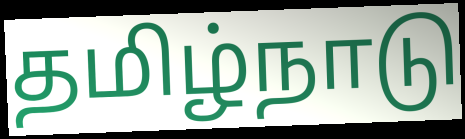
தமிழ்நாடு